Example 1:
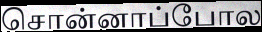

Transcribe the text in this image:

சொன்னாப்போல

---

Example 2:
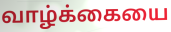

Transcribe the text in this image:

வாழ்க்கையை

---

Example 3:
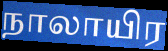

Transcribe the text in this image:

நாலாயிர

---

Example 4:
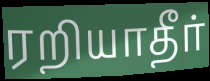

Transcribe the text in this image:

ரறியாதீர்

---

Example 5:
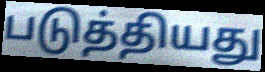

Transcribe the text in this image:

படுத்தியது